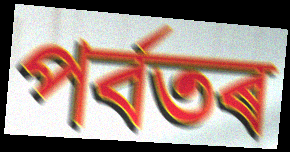
পৰ্বতৰ